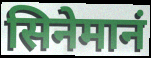
सिनेमानं